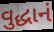
વુદ્ધાનં